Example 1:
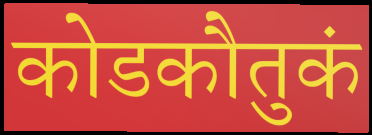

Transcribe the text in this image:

कोडकौतुकं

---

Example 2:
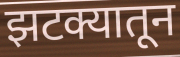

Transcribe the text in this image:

झटक्यातून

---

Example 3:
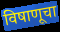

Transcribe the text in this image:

विषाणूचा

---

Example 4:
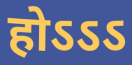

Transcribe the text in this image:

होऽऽऽ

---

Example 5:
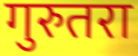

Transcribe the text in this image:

गुरुतरा